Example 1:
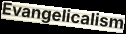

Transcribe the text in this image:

Evangelicalism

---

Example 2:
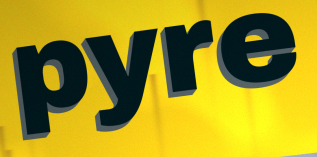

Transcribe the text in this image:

pyre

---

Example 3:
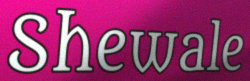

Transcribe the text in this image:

Shewale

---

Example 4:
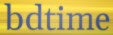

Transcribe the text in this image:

bdtime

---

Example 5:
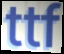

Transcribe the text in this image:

ttf